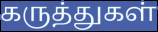
கருத்துகள்